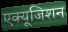
एक्यूजिशन